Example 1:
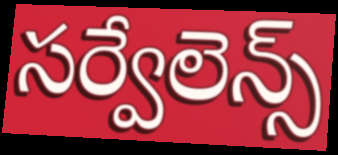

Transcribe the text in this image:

సర్వేలెన్స్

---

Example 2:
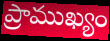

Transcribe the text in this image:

ప్రాముఖ్యం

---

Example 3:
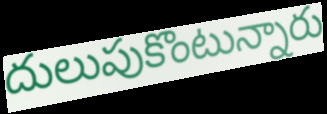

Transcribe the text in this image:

దులుపుకొంటున్నారు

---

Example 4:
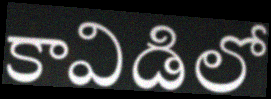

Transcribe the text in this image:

కావిడిలో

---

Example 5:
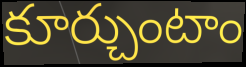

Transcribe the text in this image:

కూర్చుంటాం